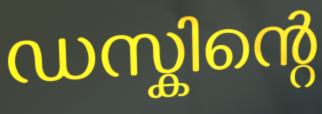
ഡസ്കിന്റെ